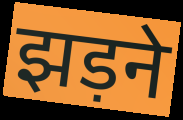
झड़ने